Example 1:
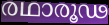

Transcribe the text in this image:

രഥാരൂഢ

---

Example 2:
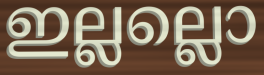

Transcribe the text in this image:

ഇല്ലല്ലൊ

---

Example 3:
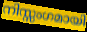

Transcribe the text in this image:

നിസ്സംഗമായി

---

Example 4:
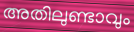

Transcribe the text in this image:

അതിലുണ്ടാവും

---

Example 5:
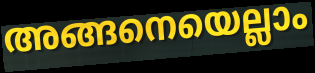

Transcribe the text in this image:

അങ്ങനെയെല്ലാം